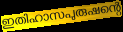
ഇതിഹാസപുരുഷന്റെ